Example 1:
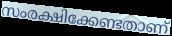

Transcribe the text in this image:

സംരക്ഷിക്കേണ്ടതാണ്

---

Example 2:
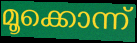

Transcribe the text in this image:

മൂക്കൊന്ന്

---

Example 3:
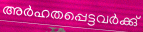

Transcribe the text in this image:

അർഹതപ്പെട്ടവർക്കു്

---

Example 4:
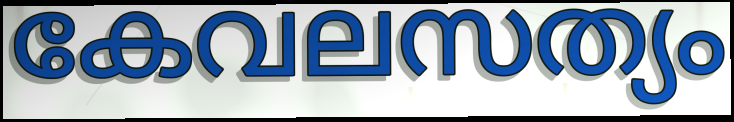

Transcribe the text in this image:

കേവലസത്യം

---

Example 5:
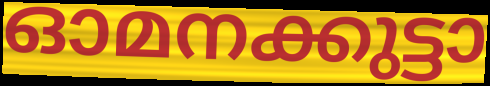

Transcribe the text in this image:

ഓമനക്കുട്ടാ